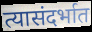
त्यासंदर्भात